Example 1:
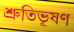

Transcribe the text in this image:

শ্রুতিভূষণ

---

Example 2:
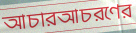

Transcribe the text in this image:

আচারআচরণের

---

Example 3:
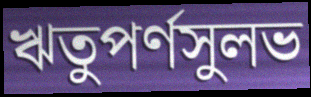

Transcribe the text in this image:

ঋতুপর্ণসুলভ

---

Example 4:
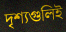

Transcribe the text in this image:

দৃশ্যগুলিই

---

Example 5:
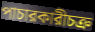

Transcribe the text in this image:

পাচারকারীচক্র